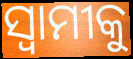
ସ୍ବାମୀକୁ